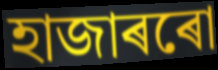
হাজাৰৰো